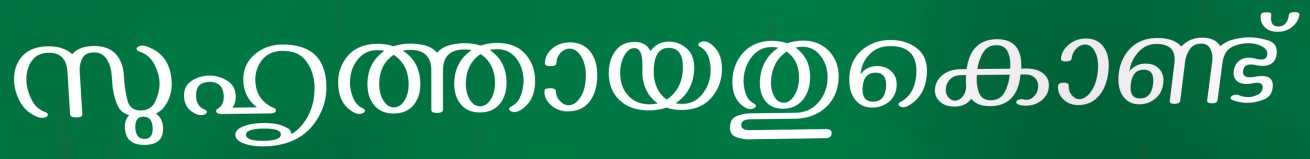
സുഹൃത്തായതുകൊണ്ട്